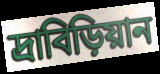
দ্রাবিড়িয়ান